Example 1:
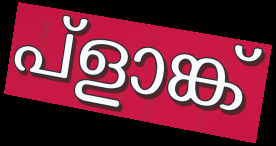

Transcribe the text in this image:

പ്ളാങ്ക്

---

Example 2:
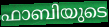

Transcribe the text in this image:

ഫാബിയുടെ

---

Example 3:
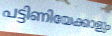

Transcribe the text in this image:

പട്ടിണിയേക്കാളും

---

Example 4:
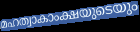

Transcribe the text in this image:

മഹത്വാകാംക്ഷയുടെയും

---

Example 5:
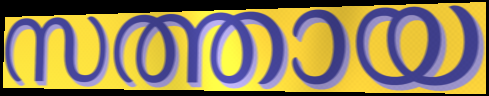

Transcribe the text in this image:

സത്തായ